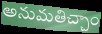
అనుమతిచ్చాం